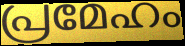
പ്രമേഹം